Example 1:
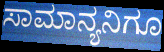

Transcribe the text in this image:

ಸಾಮಾನ್ಯನಿಗೂ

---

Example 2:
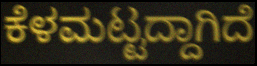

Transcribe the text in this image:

ಕೆಳಮಟ್ಟದ್ದಾಗಿದೆ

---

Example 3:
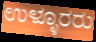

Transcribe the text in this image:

ಉಳ್ಳೂರರು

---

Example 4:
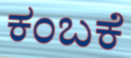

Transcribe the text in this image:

ಕಂಬಕೆ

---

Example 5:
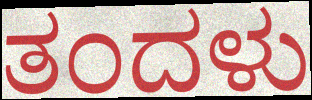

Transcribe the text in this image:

ತಂದಳು